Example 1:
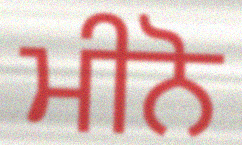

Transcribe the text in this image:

ਮੀਨੋ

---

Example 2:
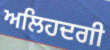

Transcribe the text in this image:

ਅਲਿਹਦਗੀ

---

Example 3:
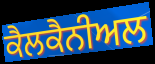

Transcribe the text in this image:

ਕੈਲਕੈਨੀਅਲ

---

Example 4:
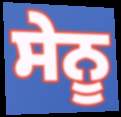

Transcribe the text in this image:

ਸੇਨੂ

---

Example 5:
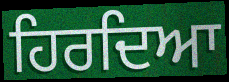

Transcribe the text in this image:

ਹਿਰਦਿਆ